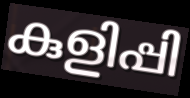
കുളിപ്പി